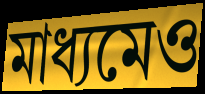
মাধ্যমেও